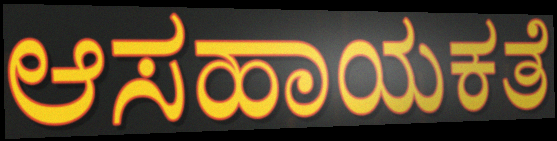
ಆಸಹಾಯಕತೆ